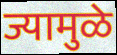
ज्यामुळे